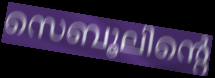
സെബൂലിന്റെ